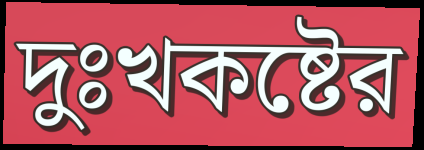
দুঃখকষ্টের